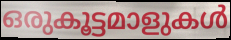
ഒരുകൂട്ടമാളുകൾ